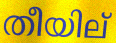
തീയില്